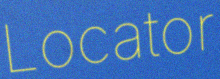
Locator